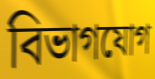
বিভাগযোগ